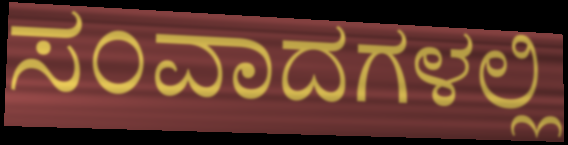
ಸಂವಾದಗಳಲ್ಲಿ